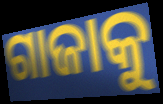
ଗାଜାକୁ